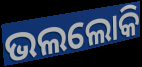
ଭଲଲୋକି